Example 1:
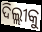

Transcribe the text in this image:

ଦିଲ୍ଲୀକୁ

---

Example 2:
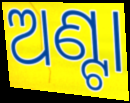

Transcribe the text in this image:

ଅଣ୍ଟା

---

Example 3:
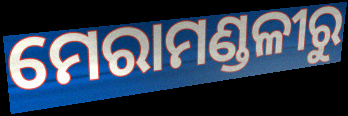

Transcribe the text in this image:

ମେରାମଣ୍ଡଳୀରୁ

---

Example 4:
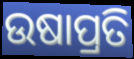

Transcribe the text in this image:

ଉଷାପ୍ରତି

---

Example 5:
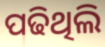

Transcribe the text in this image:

ପଢିଥିଲି